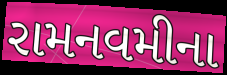
રામનવમીના